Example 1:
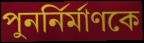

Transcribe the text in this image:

পুনর্নির্মাণকে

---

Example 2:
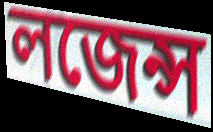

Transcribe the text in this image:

লজেন্স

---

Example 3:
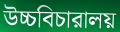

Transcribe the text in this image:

উচ্চবিচারালয়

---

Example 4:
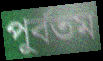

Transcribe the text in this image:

পূর্বতম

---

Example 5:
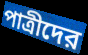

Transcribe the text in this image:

পাত্রীদের